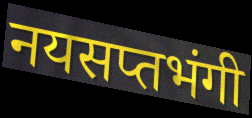
नयसप्तभंगी